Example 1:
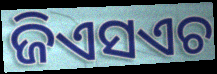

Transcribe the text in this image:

ଜିଏସଏଚ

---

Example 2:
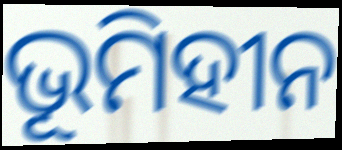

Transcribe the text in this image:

ଭୂମିହୀନ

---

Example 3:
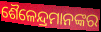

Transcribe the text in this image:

ଶୈଳେନ୍ଦ୍ରମାନଙ୍କର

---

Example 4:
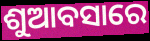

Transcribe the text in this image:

ଶୁଆବସାରେ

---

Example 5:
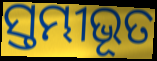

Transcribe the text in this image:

ସ୍ତମ୍ଭୀଭୂତ